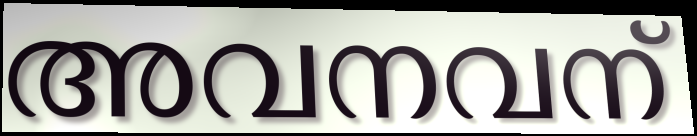
അവനവന്